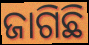
ଜାଗିଛି